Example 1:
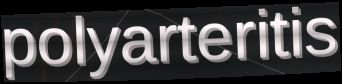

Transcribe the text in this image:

polyarteritis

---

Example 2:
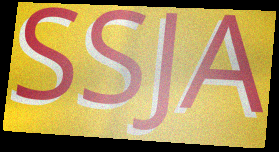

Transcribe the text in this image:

SSJA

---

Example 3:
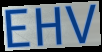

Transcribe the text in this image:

EHV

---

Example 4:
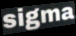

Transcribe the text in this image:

sigma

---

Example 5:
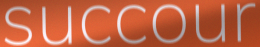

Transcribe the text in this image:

succour